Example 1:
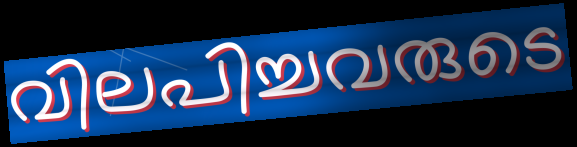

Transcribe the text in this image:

വിലപിച്ചവരുടെ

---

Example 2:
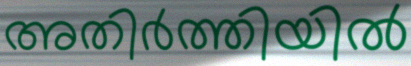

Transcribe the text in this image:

അതിർത്തിയിൽ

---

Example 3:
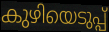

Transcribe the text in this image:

കുഴിയെടുപ്പ്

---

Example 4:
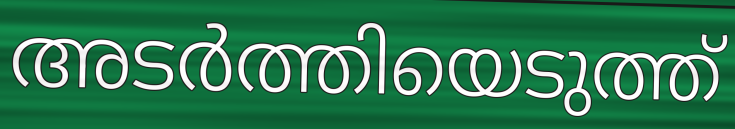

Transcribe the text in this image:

അടർത്തിയെടുത്ത്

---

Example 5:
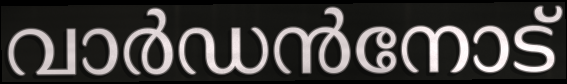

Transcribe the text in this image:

വാർഡൻനോട്